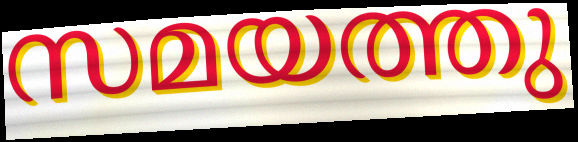
സമയത്തു